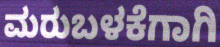
ಮರುಬಳಕೆಗಾಗಿ